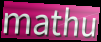
mathu